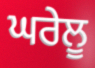
ਘਰੇਲੂ